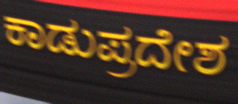
ಕಾಡುಪ್ರದೇಶ